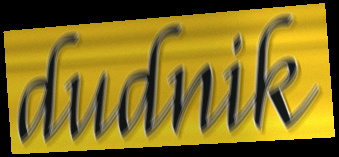
dudnik